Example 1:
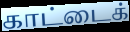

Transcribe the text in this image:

காட்டைக்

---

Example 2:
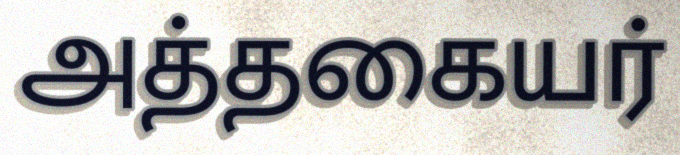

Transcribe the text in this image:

அத்தகையர்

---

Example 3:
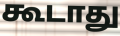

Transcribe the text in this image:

கூடாது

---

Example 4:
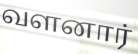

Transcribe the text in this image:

வளனார்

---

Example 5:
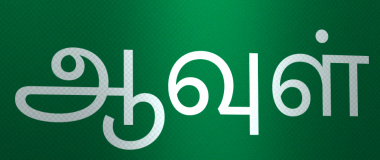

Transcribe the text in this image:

ஆவுள்